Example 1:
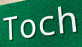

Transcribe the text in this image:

Toch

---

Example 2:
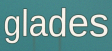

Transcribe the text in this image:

glades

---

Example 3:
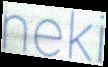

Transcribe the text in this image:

neki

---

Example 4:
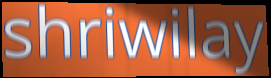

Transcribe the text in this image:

shriwilay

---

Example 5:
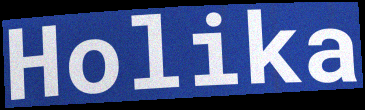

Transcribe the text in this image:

Holika